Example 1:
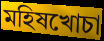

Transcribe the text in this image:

মহিষখোচা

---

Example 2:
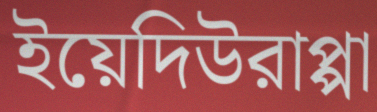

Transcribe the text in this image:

ইয়েদিউরাপ্পা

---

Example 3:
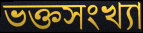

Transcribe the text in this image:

ভক্তসংখ্যা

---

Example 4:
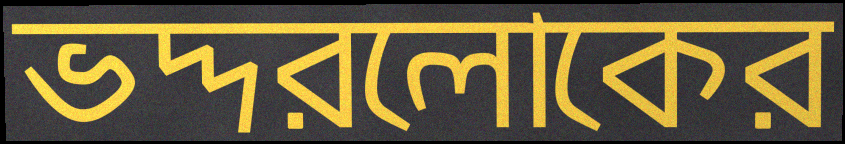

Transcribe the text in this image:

ভদ্দরলোকের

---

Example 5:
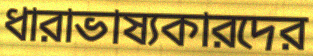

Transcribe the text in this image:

ধারাভাষ্যকারদের